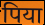
पिया